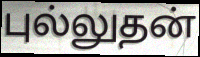
புல்லுதன்